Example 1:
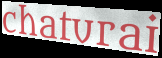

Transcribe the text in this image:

chaturai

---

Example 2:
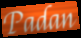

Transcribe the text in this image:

Padan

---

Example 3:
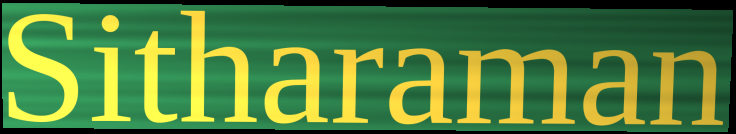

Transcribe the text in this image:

Sitharaman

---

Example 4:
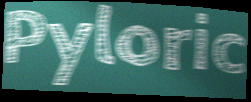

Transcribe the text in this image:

Pyloric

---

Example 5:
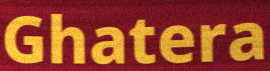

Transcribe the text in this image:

Ghatera